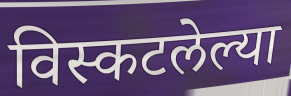
विस्कटलेल्या